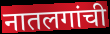
नातलगांची